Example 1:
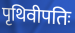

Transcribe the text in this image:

पृथिवीपतिः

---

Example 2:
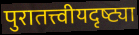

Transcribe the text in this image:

पुरातत्त्वीयदृष्ट्या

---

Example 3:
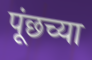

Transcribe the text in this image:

पूंछच्या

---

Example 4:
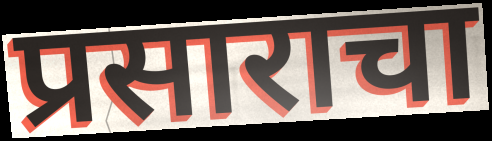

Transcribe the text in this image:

प्रसाराचा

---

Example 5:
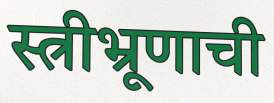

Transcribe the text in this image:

स्त्रीभ्रूणाची